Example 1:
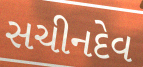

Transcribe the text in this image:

સચીનદેવ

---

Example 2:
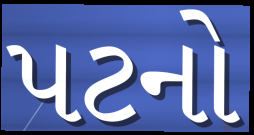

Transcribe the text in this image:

પટનો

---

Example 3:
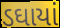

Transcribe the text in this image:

ડઘાયાં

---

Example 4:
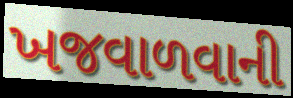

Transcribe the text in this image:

ખજવાળવાની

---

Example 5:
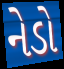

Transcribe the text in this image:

નેડો